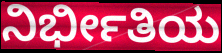
ನಿರ್ಭೀತಿಯ